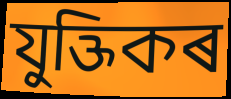
যুক্তিকৰ